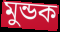
মুন্ডক